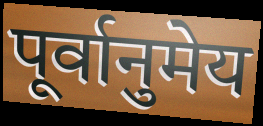
पूर्वानुमेय